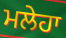
ਮਲੇਹਾ